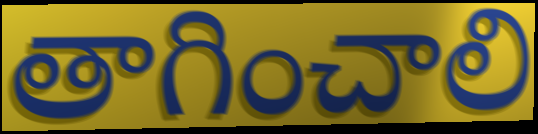
తాగించాలి